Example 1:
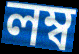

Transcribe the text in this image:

লম্ব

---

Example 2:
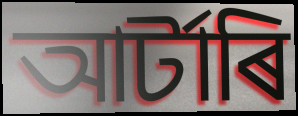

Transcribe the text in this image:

আৰ্টাৰি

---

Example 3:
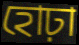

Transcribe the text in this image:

হোঢ়া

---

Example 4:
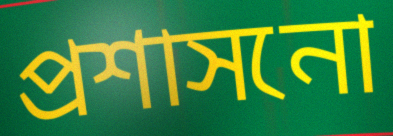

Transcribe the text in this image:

প্ৰশাসনো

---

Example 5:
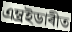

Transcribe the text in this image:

এম্ব্ৰইডাৰীত